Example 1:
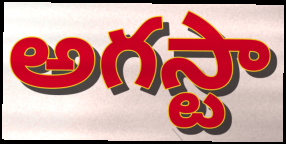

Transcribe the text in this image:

అగస్టా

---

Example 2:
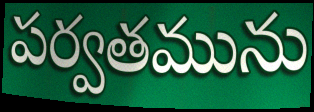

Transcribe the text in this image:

పర్వతమును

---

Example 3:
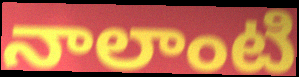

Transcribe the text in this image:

నాలాంటి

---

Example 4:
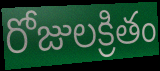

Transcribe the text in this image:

రోజులక్రితం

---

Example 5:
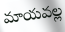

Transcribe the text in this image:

మాయవల్ల